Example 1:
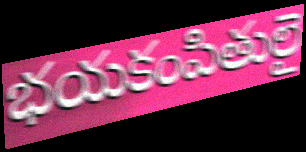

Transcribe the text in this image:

భయకంపితులై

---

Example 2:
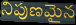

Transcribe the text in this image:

నిపుణమైన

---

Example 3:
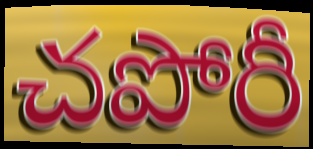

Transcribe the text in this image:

చపోరీ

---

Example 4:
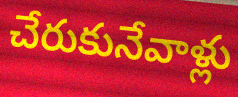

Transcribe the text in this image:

చేరుకునేవాళ్లు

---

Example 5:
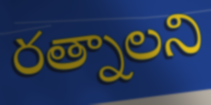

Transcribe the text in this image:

రత్నాలని